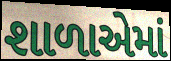
શાળાએમાં